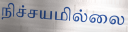
நிச்சயமில்லை